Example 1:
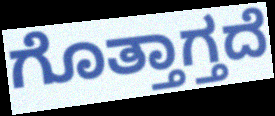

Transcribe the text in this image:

ಗೊತ್ತಾಗ್ತದೆ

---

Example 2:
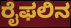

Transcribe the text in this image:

ರೈಫಲಿನ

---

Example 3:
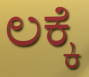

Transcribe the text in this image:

ಲಕ್ಕೆ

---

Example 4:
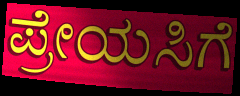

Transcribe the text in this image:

ಪ್ರೇಯಸಿಗೆ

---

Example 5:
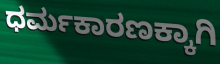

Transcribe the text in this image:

ಧರ್ಮಕಾರಣಕ್ಕಾಗಿ